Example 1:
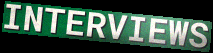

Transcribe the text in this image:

INTERVIEWS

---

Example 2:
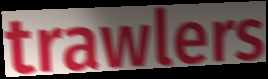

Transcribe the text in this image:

trawlers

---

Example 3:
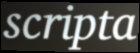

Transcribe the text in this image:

scripta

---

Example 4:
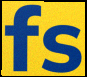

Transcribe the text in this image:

fs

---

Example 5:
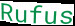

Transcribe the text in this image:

Rufus